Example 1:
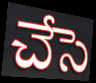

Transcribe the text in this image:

చేసె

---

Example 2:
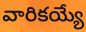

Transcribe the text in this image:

వారికయ్యే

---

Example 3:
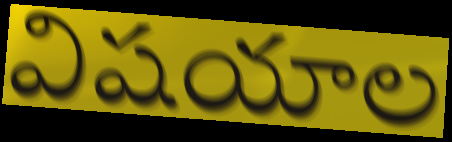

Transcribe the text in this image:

విషయాల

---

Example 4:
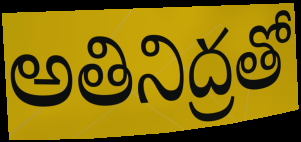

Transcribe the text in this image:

అతినిద్రతో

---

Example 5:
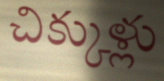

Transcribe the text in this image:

చిక్కుళ్లు